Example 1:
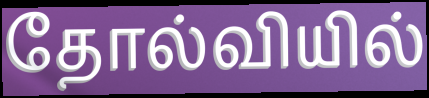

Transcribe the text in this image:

தோல்வியில்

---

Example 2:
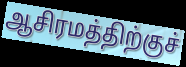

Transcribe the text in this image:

ஆசிரமத்திற்குச்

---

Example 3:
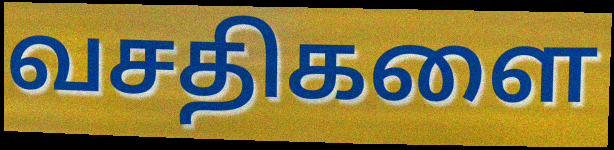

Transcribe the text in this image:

வசதிகளை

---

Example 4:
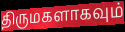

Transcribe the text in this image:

திருமகளாகவும்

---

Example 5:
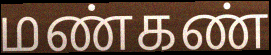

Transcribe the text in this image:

மண்கண்